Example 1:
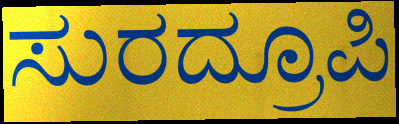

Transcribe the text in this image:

ಸುರದ್ರೂಪಿ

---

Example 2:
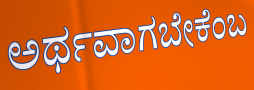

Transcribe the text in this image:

ಅರ್ಥವಾಗಬೇಕೆಂಬ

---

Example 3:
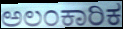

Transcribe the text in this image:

ಅಲಂಕಾರಿಕ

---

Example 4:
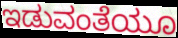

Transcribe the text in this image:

ಇಡುವಂತೆಯೂ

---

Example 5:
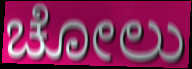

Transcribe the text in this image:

ಚೋಲು